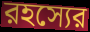
রহস্যের